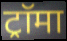
ट्रॉमा